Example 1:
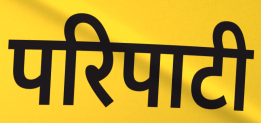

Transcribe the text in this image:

परिपाटी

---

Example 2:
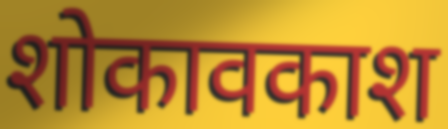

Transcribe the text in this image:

शोकावकाश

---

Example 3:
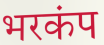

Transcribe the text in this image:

भरकंप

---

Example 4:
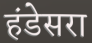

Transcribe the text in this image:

हंडेसरा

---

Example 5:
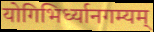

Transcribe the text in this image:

योगिभिर्ध्यानगम्यम्